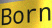
Born